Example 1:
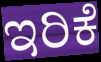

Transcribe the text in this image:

ಇರಿಕೆ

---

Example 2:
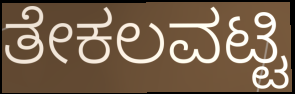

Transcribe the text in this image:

ತೇಕಲವಟ್ಟಿ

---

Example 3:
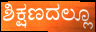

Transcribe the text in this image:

ಶಿಕ್ಷಣದಲ್ಲೂ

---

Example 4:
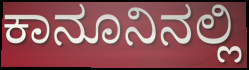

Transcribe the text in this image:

ಕಾನೂನಿನಲ್ಲಿ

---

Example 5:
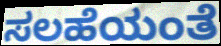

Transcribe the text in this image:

ಸಲಹೆಯಂತೆ